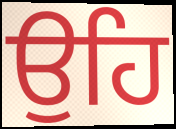
ਉਹਿ